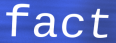
fact